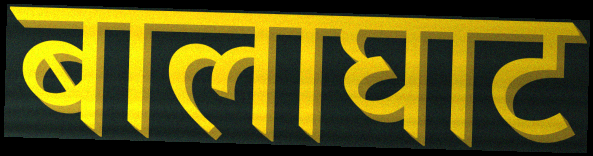
बालाघाट